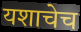
यशाचेच